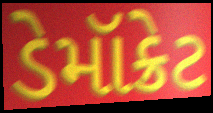
ડેમૉક્રેટ